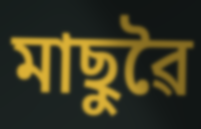
মাছুৱৈ